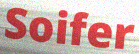
Soifer